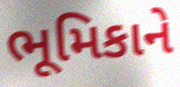
ભૂમિકાને